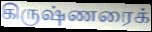
கிருஷ்ணரைக்